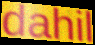
dahil